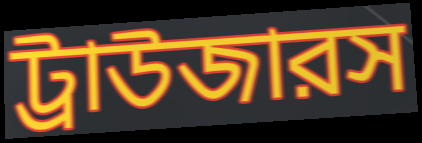
ট্রাউজারস